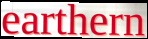
earthern